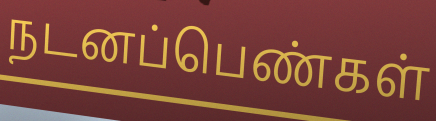
நடனப்பெண்கள்